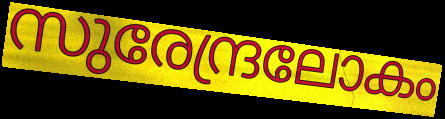
സുരേന്ദ്രലോകം